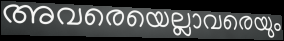
അവരെയെല്ലാവരെയും